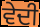
ਵੇਦੀ